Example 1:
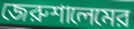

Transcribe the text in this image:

জেরুশালেমের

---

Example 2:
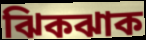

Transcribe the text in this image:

ঝিকঝাক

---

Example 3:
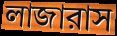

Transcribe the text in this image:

লাজারাস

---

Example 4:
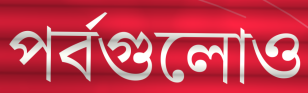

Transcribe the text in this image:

পর্বগুলোও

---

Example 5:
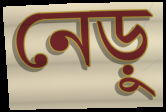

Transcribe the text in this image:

নেড়ু